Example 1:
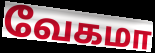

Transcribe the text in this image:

வேகமா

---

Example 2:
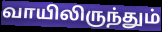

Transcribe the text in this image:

வாயிலிருந்தும்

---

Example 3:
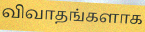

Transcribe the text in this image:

விவாதங்களாக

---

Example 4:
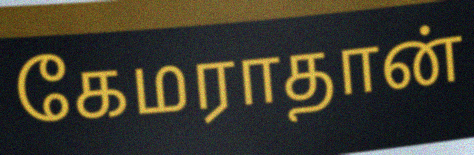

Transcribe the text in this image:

கேமராதான்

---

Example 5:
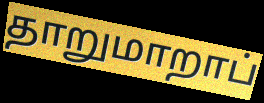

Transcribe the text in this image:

தாறுமாறாப்